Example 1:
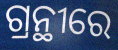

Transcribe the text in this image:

ଗ୍ରନ୍ଥୀରେ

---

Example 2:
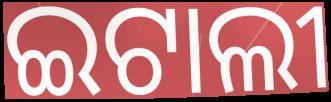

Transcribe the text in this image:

ଇଟାଲୀ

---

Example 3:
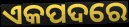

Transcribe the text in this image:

ଏକପଦରେ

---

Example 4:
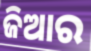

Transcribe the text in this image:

ଜିଆର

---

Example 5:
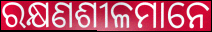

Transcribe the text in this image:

ରକ୍ଷଣଶୀଳମାନେ